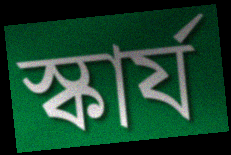
স্কার্য